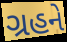
ગ્રહને